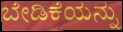
ಬೇಡಿಕೆಯನ್ನು